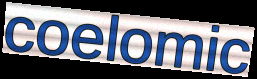
coelomic